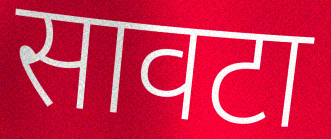
सावटा